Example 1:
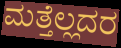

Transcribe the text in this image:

ಮತ್ತೆಲ್ಲದರ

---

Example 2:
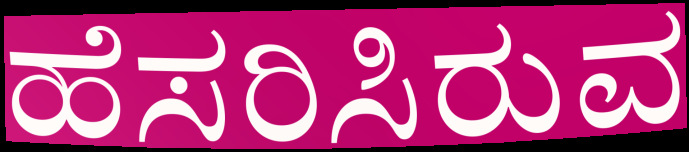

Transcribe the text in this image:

ಹೆಸರಿಸಿರುವ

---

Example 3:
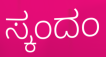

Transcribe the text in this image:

ಸ್ಕಂದಂ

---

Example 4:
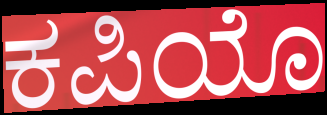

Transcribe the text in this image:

ಕಪಿಯೊ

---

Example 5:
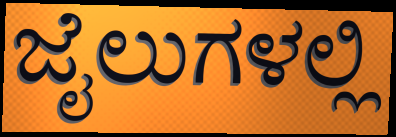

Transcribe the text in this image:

ಜೈಲುಗಳಲ್ಲಿ